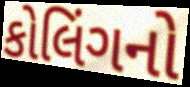
કોલિંગનો